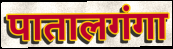
पातालगंगा